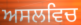
ਅਸਲਵਿਚ